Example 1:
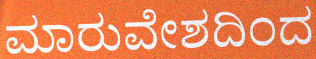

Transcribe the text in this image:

ಮಾರುವೇಶದಿಂದ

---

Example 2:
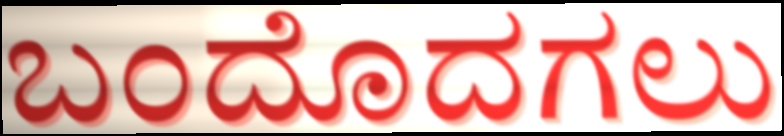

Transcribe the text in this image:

ಬಂದೊದಗಲು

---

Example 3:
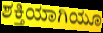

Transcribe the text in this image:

ಶಕ್ತಿಯಾಗಿಯೂ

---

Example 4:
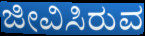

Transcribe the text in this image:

ಜೀವಿಸಿರುವ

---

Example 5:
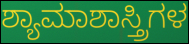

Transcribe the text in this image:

ಶ್ಯಾಮಾಶಾಸ್ತ್ರಿಗಳ